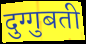
दुग्गुबती